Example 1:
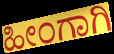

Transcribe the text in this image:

ಹೀಂಗಾಗಿ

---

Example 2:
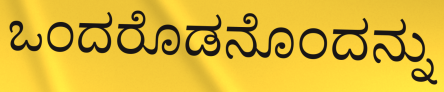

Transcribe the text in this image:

ಒಂದರೊಡನೊಂದನ್ನು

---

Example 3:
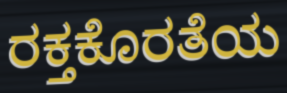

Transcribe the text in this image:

ರಕ್ತಕೊರತೆಯ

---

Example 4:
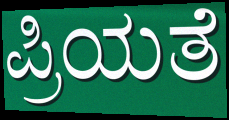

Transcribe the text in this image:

ಪ್ರಿಯತೆ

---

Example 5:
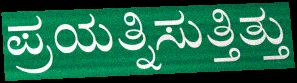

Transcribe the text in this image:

ಪ್ರಯತ್ನಿಸುತ್ತಿತ್ತು